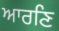
ਆਰਣਿ